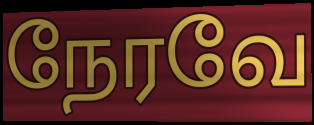
நேரவே